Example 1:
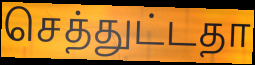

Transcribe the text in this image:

செத்துட்டதா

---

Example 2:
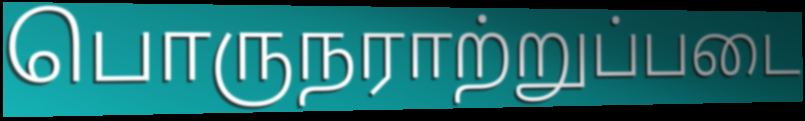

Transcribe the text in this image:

பொருநராற்றுப்படை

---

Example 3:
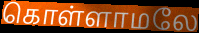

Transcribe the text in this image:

கொள்ளாமலே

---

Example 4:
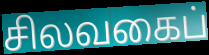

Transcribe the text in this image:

சிலவகைப்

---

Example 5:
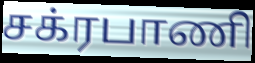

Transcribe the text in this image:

சக்ரபாணி